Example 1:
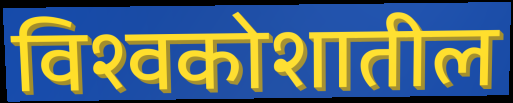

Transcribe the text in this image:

विश्वकोशातील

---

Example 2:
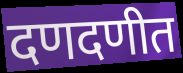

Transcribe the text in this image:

दणदणीत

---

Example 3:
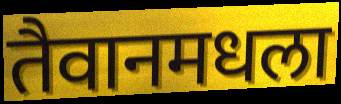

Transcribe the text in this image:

तैवानमधला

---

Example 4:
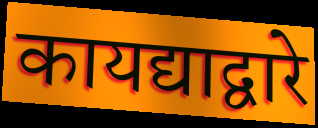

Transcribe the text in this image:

कायद्याद्वारे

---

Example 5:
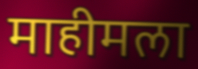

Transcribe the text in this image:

माहीमला